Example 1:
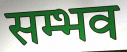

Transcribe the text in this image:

सम्भव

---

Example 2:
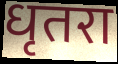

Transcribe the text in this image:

धृतरा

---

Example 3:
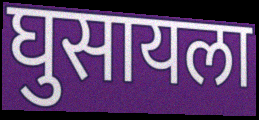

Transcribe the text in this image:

घुसायला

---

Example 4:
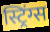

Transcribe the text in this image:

स्ट्रिंग्स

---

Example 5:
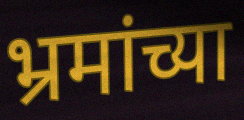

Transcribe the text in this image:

भ्रमांच्या